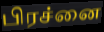
பிரச்னை